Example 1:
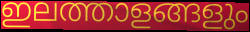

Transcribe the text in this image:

ഇലത്താളങ്ങളും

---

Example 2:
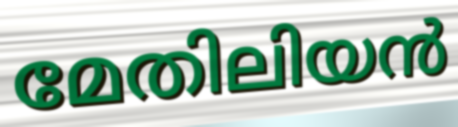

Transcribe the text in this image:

മേതിലിയൻ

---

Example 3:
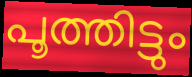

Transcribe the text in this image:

പൂത്തിട്ടും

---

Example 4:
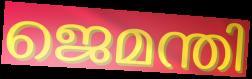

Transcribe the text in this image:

ജെമന്തി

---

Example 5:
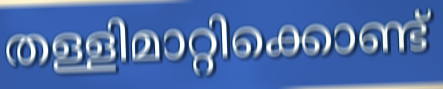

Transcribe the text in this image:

തള്ളിമാറ്റിക്കൊണ്ട്